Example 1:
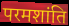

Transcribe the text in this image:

परमशांति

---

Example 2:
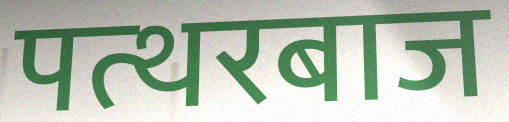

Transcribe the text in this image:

पत्थरबाज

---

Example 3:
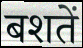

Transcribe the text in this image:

बशतें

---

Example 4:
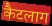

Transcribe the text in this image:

कैटलाग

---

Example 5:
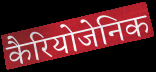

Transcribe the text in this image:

कैरियोजेनिक